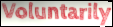
Voluntarily